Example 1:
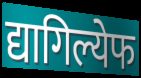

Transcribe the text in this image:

द्यागिल्येफ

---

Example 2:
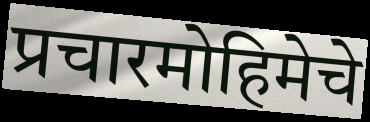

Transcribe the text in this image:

प्रचारमोहिमेचे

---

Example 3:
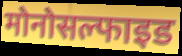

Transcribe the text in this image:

मोनोसल्फाइड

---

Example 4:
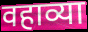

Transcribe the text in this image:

वहाव्या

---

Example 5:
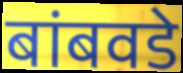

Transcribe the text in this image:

बांबवडे